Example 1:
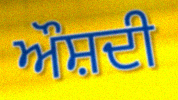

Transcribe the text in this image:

ਔਸ਼ਦੀ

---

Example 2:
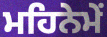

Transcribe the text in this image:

ਮਹਿਨੇਮੇਂ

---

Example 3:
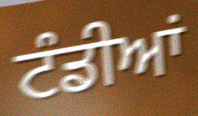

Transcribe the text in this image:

ਟੰਡੀਆਂ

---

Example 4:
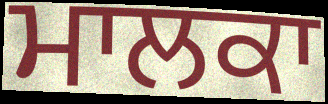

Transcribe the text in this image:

ਮਾਲਕਾ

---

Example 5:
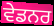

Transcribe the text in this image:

ਵੇਡਨਰ